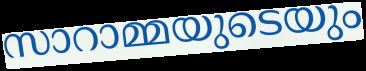
സാറാമ്മയുടെയും